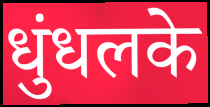
धुंधलके